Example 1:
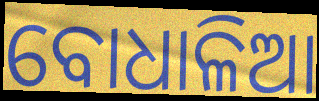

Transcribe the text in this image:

ବୋଧାଳିଆ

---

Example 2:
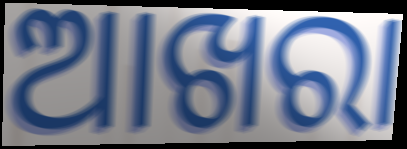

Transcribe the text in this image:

ଆଖରା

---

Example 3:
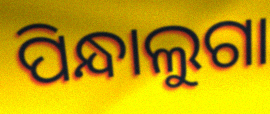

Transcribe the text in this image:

ପିନ୍ଧାଲୁଗା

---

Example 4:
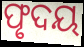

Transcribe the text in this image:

ଫୃଦୟ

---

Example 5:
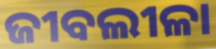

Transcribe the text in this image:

ଜୀବଲୀଳା